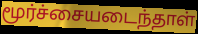
மூர்ச்சையடைந்தாள்